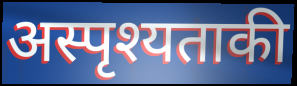
अस्पृश्यताकी